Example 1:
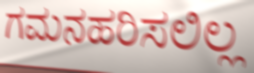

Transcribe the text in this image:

ಗಮನಹರಿಸಲಿಲ್ಲ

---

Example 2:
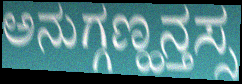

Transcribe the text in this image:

ಅನುಗ್ಗಣ್ಹನ್ತಸ್ಸ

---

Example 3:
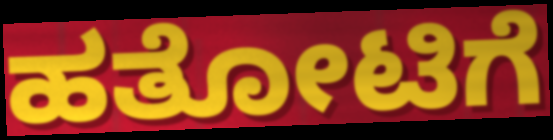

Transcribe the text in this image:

ಹತೋಟಿಗೆ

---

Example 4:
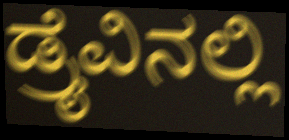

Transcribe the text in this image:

ಡ್ರೈವಿನಲ್ಲಿ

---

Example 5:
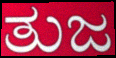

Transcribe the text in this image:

ತುಜ